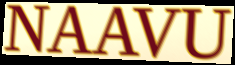
NAAVU